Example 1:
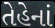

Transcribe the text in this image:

તેહેનાં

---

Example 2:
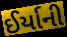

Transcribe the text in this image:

ઈર્યાની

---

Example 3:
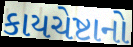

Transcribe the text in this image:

કાયચેષ્ટાનો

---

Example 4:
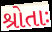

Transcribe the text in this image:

શ્રોતાઃ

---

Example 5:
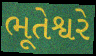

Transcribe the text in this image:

ભૂતેશ્વરે